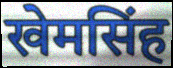
खेमसिंह